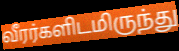
வீரர்களிடமிருந்து